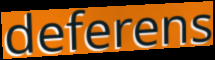
deferens